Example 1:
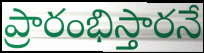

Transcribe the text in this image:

ప్రారంభిస్తారనే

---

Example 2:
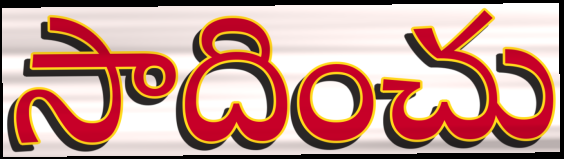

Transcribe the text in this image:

సాదించు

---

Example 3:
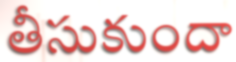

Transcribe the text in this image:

తీసుకుందా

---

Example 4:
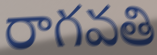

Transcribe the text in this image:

రాగవతి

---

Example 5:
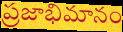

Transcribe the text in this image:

ప్రజాభిమానం